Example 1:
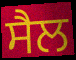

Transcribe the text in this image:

ਸੈਲ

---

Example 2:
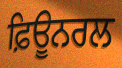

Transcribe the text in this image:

ਫ਼ਿਊਨਰਲ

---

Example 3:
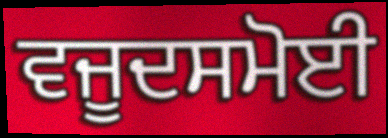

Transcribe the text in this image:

ਵਜੂਦਸਮੋਈ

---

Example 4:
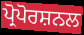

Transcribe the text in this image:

ਪ੍ਰੋਪੋਰਸ਼ਨਲ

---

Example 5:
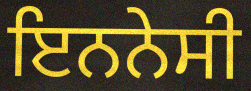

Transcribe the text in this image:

ਇਨਨੇਸੀ